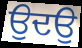
ਉਦਉ